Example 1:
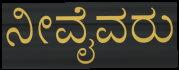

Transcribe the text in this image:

ನೀವೈವರು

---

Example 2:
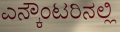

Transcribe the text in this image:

ಎನ್ಕೌಂಟರಿನಲ್ಲಿ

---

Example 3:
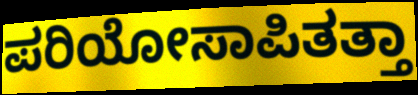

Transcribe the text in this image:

ಪರಿಯೋಸಾಪಿತತ್ತಾ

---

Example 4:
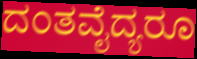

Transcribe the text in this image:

ದಂತವೈದ್ಯರೂ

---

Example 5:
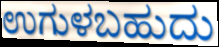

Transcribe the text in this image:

ಉಗುಳಬಹುದು